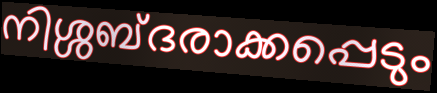
നിശ്ശബ്ദരാക്കപ്പെടും